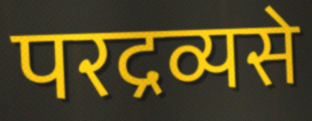
परद्रव्यसे